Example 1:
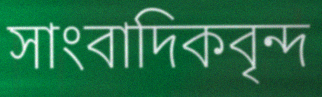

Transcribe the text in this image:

সাংবাদিকবৃন্দ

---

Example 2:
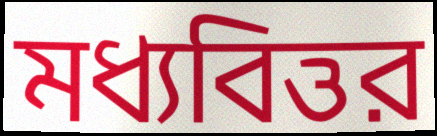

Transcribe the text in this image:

মধ্যবিত্তর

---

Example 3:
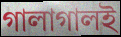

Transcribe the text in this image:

গালাগালই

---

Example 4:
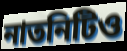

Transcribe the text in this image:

নাতনিটিও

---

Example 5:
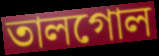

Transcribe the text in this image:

তালগোল